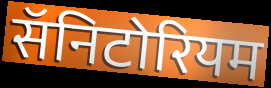
सॅनिटोरियम